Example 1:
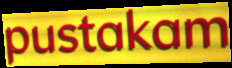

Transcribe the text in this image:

pustakam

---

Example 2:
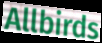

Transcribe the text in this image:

Allbirds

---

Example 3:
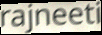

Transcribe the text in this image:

rajneeti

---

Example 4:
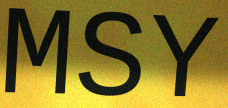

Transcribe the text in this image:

MSY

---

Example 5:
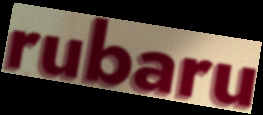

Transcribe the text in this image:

rubaru